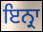
ਇਨ੍ਰਾ